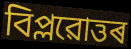
বিপ্লৱোত্তৰ